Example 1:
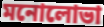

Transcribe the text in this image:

মনোলোভা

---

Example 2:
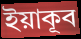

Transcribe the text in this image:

ইয়াকূব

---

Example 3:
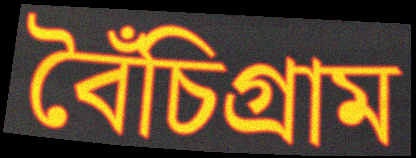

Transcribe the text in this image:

বৈঁচিগ্রাম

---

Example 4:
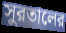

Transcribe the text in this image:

সুরতালের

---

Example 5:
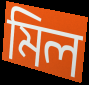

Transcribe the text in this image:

মিল